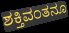
ಶಕ್ತಿವಂತನೂ